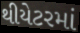
થીયેટરમાં